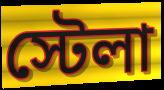
স্টেলা